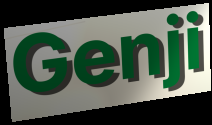
Genji